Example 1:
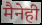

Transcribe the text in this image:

मैनेही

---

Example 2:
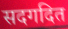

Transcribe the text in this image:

सदगदित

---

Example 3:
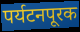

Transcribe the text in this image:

पर्यटनपूरक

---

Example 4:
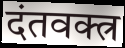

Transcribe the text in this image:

दंतवक्त्र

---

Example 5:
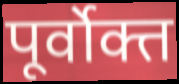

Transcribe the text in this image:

पूर्वोक्त